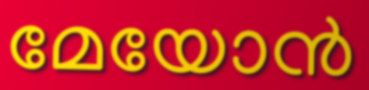
മേയോൻ